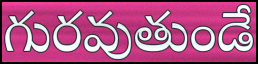
గురవుతుండే